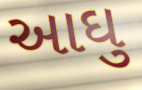
આઘુ